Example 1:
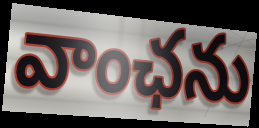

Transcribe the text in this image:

వాంఛను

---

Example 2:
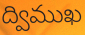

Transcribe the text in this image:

ద్విముఖ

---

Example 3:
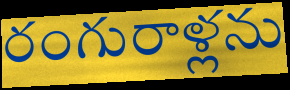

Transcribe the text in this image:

రంగురాళ్లను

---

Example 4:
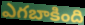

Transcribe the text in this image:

ఎగబాకింది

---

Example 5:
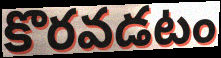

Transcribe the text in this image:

కొరవడటం